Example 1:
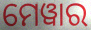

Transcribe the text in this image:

ମେୱାର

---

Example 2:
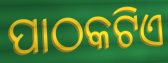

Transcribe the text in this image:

ପାଠକଟିଏ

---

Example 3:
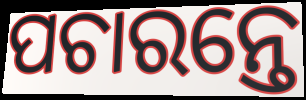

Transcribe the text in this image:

ପଚାରନ୍ତେ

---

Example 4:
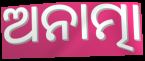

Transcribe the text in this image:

ଅନାତ୍ମା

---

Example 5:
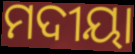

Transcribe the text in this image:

ମଦୀୟା